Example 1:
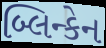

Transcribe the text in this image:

બ્લિન્કેન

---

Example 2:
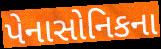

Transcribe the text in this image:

પેનાસોનિકના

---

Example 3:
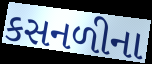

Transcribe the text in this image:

કસનળીના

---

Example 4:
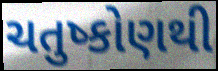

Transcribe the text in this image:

ચતુષ્કોણથી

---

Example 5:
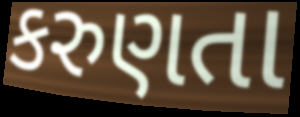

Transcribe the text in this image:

કરુણતા